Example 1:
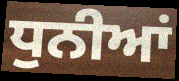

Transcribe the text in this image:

ਧੁਨੀਆਂ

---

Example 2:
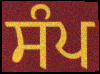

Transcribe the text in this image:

ਸੰਪ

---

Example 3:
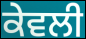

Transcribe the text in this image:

ਕੇਵਲੀ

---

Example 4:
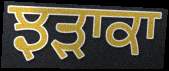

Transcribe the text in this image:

ਝੜਾਕਾ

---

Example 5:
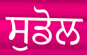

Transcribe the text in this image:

ਸੁਡੋਲ